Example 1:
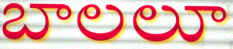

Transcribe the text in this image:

బాలలూ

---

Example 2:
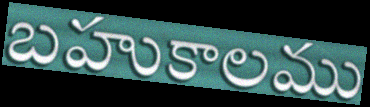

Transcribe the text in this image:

బహుకాలము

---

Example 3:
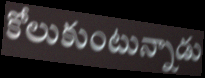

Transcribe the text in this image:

కోలుకుంటున్నాడు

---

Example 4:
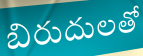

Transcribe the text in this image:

బిరుదులతో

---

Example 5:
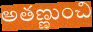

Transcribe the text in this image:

అతణ్ణుంచి